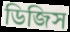
ডিজিস